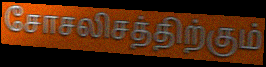
சோசலிசத்திற்கும்